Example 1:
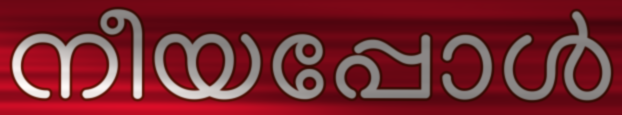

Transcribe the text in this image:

നീയപ്പോൾ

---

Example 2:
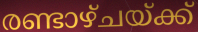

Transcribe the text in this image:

രണ്ടാഴ്ചയ്ക്ക്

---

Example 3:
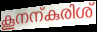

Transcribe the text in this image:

കൂനന്കുരിശ്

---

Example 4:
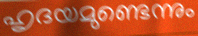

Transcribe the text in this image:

ഹൃദയമുണ്ടെന്നും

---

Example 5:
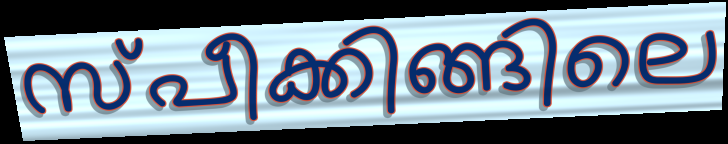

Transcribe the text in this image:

സ്പീക്കിങ്ങിലെ